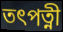
তৎপত্নী